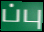
ப்பு